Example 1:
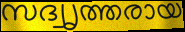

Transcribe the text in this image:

സദ്വൃത്തരായ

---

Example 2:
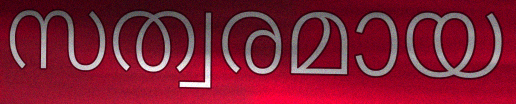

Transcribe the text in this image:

സത്വരമായ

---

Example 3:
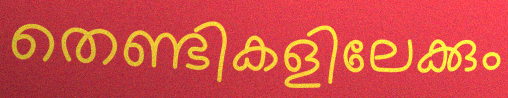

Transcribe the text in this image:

തെണ്ടികളിലേക്കും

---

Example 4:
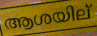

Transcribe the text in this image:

ആശയില്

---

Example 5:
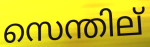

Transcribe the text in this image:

സെന്തില്